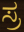
ಸ್ರ